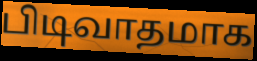
பிடிவாதமாக